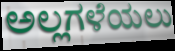
ಅಲ್ಲಗಳೆಯಲು